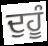
ਦੁਹੂੰ